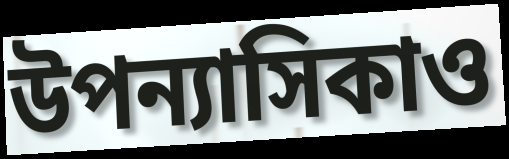
উপন্যাসিকাও